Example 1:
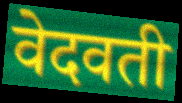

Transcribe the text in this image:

वेदवती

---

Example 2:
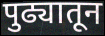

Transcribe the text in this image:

पुढ्यातून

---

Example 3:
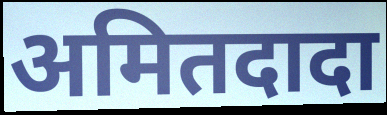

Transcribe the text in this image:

अमितदादा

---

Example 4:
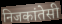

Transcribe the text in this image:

निजकांतेसी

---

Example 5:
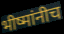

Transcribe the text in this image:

भीष्मांनीच